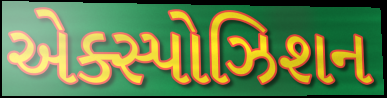
એક્સ્પોઝિશન